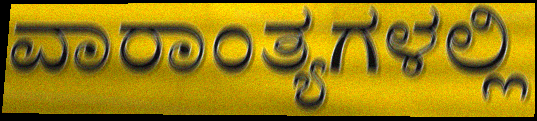
ವಾರಾಂತ್ಯಗಳಲ್ಲಿ